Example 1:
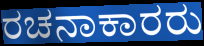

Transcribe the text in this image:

ರಚನಾಕಾರರು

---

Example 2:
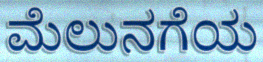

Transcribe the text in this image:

ಮೆಲುನಗೆಯ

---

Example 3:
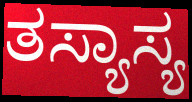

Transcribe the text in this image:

ತಸ್ಯಾಸ್ಯ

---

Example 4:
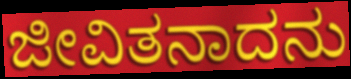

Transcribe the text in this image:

ಜೀವಿತನಾದನು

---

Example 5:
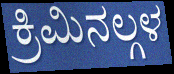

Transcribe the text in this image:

ಕ್ರಿಮಿನಲ್ಗಳ